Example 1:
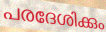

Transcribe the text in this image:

പരദേശിക്കും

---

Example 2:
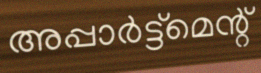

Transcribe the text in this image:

അപ്പാർട്ട്മെന്റ്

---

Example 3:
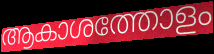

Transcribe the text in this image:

ആകാശത്തോളം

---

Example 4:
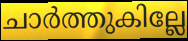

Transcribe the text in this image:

ചാർത്തുകില്ലേ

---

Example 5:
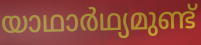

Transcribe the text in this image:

യാഥാർഥ്യമുണ്ട്